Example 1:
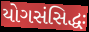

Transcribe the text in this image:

યોગસંસિદ્ધઃ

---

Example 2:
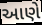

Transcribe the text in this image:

આણે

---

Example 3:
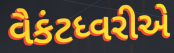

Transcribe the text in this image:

વૈકંટધ્વરીએ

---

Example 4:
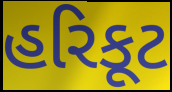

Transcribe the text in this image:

હરિકૂટ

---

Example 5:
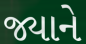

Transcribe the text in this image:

જ્યાને